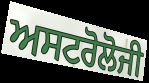
ਅਸਟਰੋਲੋਜੀ